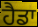
ਹੈਡਾ